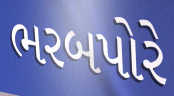
ભરબપોરે